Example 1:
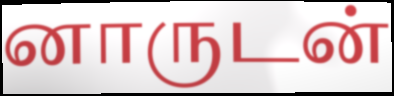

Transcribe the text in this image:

னாருடன்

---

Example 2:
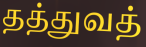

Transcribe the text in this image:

தத்துவத்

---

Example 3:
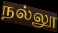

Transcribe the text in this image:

நல்லூ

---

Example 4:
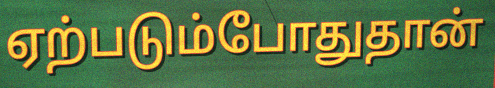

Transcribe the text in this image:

ஏற்படும்போதுதான்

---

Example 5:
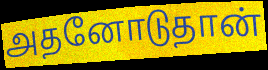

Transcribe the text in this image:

அதனோடுதான்